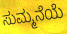
ಸುಮ್ಮನೆಯೆ